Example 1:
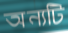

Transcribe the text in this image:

অন্যটি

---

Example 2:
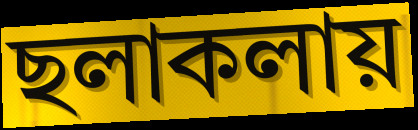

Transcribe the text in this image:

ছলাকলায়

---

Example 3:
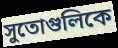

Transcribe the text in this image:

সুতোগুলিকে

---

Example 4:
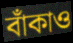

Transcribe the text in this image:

বাঁকাও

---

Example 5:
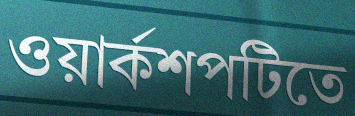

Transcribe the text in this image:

ওয়ার্কশপটিতে